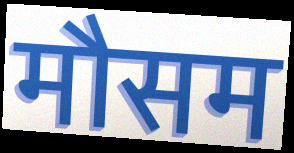
मौसम